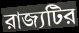
রাজ্যটির